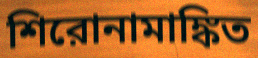
শিরোনামাঙ্কিত